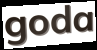
goda